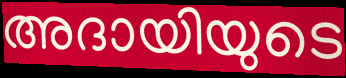
അദായിയുടെ